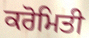
ਕਰੋਮਿਤੀ